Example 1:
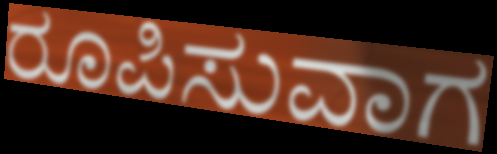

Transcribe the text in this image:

ರೂಪಿಸುವಾಗ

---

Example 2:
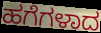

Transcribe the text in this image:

ಹಗೆಗಳಾದ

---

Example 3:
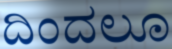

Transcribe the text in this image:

ದಿಂದಲೂ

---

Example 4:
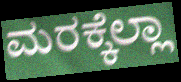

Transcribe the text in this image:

ಮರಕ್ಕೆಲ್ಲಾ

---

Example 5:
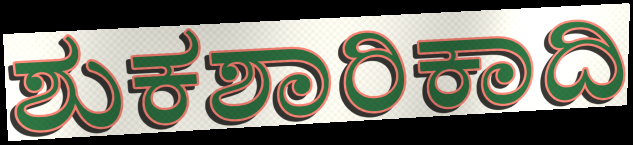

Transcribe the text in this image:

ಶುಕಶಾರಿಕಾದಿ